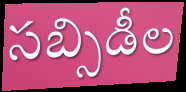
సబ్సిడీల